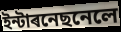
ইন্টাৰনেছনেলে